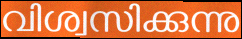
വിശ്വസിക്കുന്നു